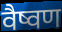
वैष्वण